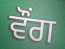
ਵੌਂਗ